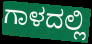
ಗಾಳದಲ್ಲಿ